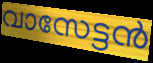
വാസേട്ടൻ